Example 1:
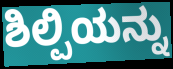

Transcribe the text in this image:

ಶಿಲ್ಪಿಯನ್ನು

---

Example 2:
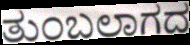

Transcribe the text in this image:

ತುಂಬಲಾಗದ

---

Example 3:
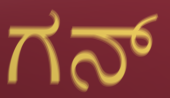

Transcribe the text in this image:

ಗನ್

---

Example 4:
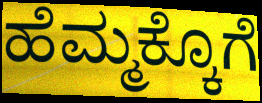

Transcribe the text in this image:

ಹೆಮ್ಮಕ್ಕೊಗೆ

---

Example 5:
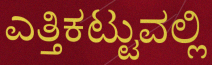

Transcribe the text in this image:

ಎತ್ತಿಕಟ್ಟುವಲ್ಲಿ